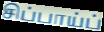
சிப்பாய்ப்